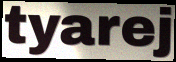
tyarej